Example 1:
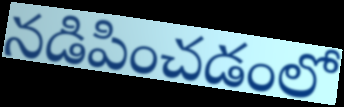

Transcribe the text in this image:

నడిపించడంలో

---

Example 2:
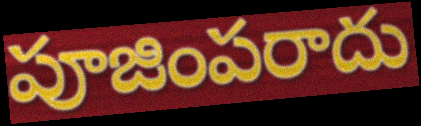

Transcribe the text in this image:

పూజింపరాదు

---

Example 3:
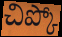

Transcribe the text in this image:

చిప్కో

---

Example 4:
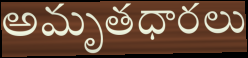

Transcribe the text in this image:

అమృతధారలు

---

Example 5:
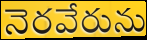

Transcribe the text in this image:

నెరవేరును